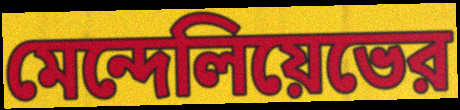
মেন্দেলিয়েভের